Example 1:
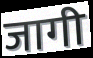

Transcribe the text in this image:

जागी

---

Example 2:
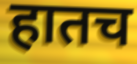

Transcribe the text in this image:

हातच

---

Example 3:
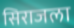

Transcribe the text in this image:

सिराजला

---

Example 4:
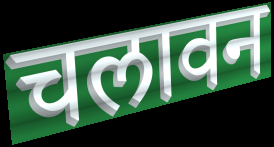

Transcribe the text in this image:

चलावन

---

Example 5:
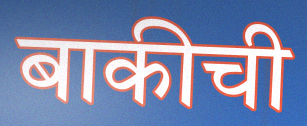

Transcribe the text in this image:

बाकीची